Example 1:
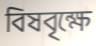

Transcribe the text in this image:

বিষবৃক্ষে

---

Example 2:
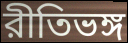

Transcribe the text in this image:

রীতিভঙ্গ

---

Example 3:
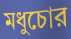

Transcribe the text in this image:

মধুচোর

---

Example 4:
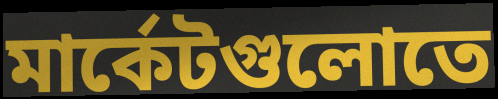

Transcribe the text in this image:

মার্কেটগুলোতে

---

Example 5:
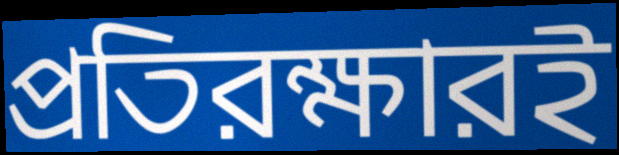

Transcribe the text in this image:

প্রতিরক্ষারই